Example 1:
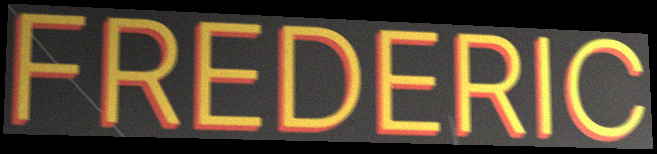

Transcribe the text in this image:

FREDERIC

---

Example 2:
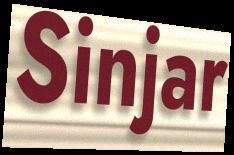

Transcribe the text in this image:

Sinjar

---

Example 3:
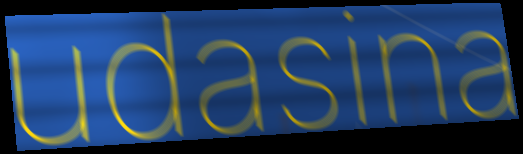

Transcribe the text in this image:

udasina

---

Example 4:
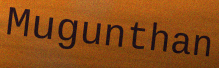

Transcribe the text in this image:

Mugunthan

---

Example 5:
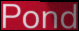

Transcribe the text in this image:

Pond